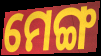
ମେଙ୍ଗ